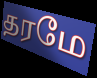
தரமே